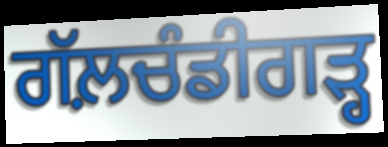
ਗੱਲ਼ਚੰਡੀਗੜ੍ਹ